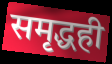
समृद्धही